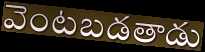
వెంటబడతాడు